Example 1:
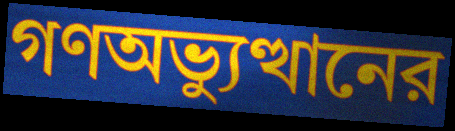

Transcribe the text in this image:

গণঅভ্যুত্থানের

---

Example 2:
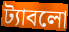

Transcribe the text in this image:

ট্যাবলো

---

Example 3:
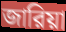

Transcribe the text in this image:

জারিয়া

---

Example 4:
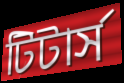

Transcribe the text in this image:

টিটার্স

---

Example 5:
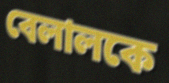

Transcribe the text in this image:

বেলালকে